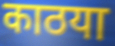
काठया